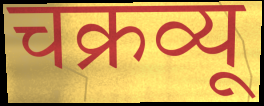
चक्रव्यू